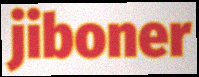
jiboner